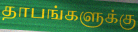
தாபங்களுக்கு